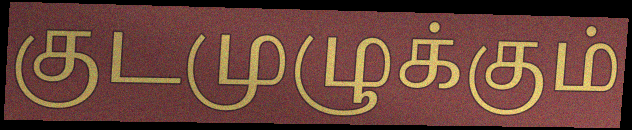
குடமுழுக்கும்